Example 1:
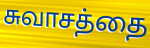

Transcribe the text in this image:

சுவாசத்தை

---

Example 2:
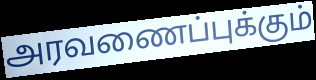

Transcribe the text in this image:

அரவணைப்புக்கும்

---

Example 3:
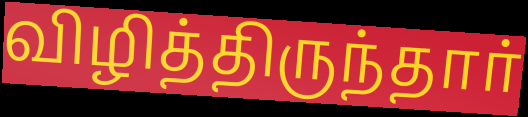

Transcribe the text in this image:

விழித்திருந்தார்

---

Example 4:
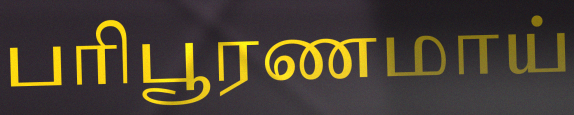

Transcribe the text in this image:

பரிபூரணமாய்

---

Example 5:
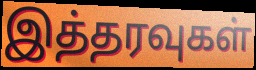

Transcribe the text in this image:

இத்தரவுகள்